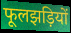
फूलझड़ियों